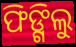
ଫିଙ୍ଗିଲୁ